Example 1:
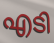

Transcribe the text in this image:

എടി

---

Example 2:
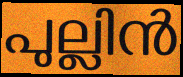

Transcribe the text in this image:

പുല്ലിൻ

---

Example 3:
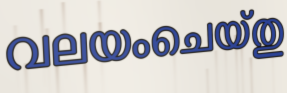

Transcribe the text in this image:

വലയംചെയ്തു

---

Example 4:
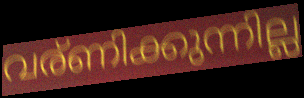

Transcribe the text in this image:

വര്ണിക്കുന്നില്ല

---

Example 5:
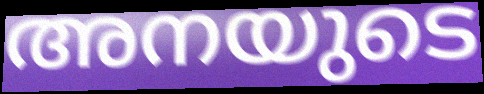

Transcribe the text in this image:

അനയുടെ